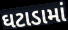
ઘટાડામાં